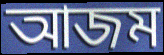
আজম